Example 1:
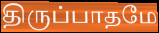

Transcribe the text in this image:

திருப்பாதமே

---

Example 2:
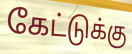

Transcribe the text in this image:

கேட்டுக்கு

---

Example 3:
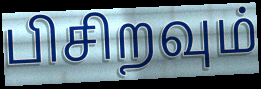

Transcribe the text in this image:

பிசிறவும்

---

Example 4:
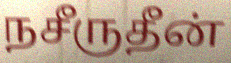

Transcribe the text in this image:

நசீருதீன்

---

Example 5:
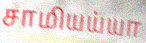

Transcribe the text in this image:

சாமியய்யா